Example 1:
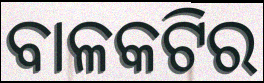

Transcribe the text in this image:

ବାଳକଟିର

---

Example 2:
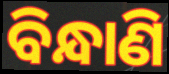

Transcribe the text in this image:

ବିନ୍ଧାଣି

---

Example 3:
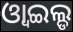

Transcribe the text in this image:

ଓ୍ବାଇଲ୍ଡ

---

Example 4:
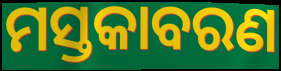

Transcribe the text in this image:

ମସ୍ତକାବରଣ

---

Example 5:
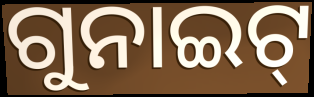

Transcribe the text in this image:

ଗୁନାଇଟ୍